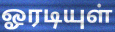
ஓரடியுள்